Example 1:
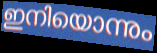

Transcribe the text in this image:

ഇനിയൊന്നും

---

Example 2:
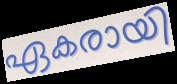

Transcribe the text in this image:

ഏകരായി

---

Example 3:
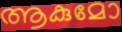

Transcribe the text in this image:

ആകുമോ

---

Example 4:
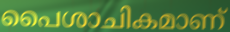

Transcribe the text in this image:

പൈശാചികമാണ്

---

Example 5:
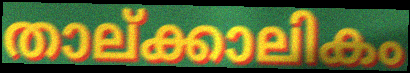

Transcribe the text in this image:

താല്ക്കാലികം